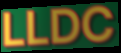
LLDC